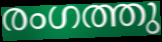
രംഗത്തു